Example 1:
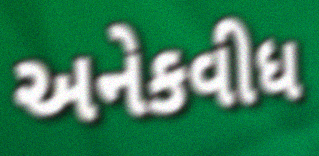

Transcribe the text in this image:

અનેકવીધ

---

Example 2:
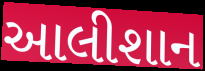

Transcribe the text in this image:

આલીશાન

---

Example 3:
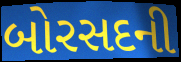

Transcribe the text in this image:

બોરસદની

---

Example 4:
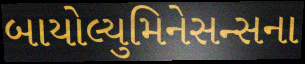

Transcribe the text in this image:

બાયોલ્યુમિનેસન્સના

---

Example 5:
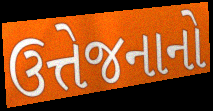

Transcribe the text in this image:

ઉત્તેજનાનો